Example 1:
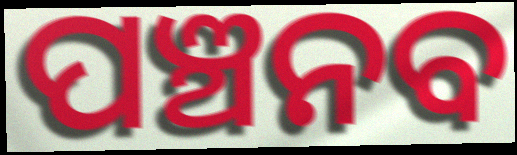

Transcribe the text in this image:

ପଞ୍ଚନବ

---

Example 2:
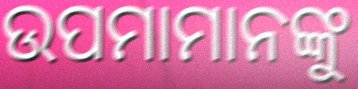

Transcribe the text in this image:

ଉପମାମାନଙ୍କୁ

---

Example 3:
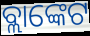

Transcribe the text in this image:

ବ୍ଲାଙ୍କେଟ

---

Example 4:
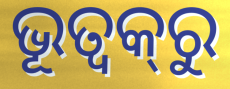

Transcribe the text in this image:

ଭୂତ୍ଵକ୍‌ରୁ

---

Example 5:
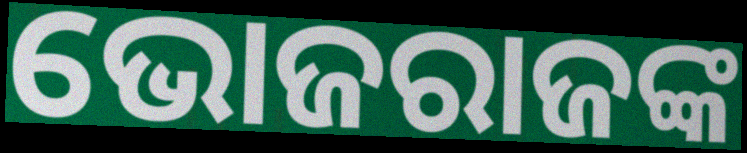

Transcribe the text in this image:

ଭୋଜରାଜଙ୍କ